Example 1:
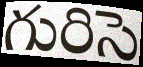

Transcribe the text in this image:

గురిసె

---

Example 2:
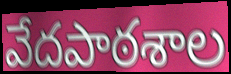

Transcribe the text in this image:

వేదపాఠశాల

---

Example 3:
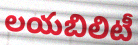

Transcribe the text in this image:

లయబిలిటీ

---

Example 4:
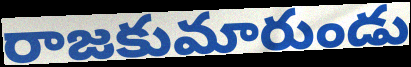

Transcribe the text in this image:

రాజకుమారుండు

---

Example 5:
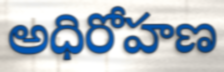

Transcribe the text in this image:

అధిరోహణ